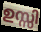
ഉസ്സി